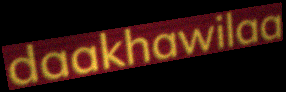
daakhawilaa